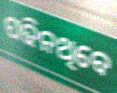
ପଢିନଥିବେ